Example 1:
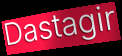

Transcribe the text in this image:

Dastagir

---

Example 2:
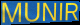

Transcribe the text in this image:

MUNIR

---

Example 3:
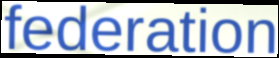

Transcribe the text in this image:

federation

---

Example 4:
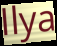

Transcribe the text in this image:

Ilya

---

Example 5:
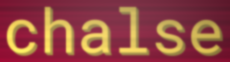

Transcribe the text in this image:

chalse